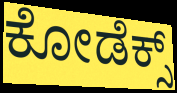
ಕೋಡೆಕ್ಸ್